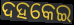
ଦହକେଇ